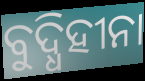
ବୁଦ୍ଧିହୀନା